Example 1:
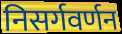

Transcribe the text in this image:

निसर्गवर्णन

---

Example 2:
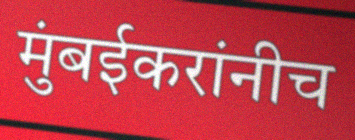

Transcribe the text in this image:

मुंबईकरांनीच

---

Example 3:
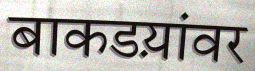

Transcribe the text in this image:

बाकडय़ांवर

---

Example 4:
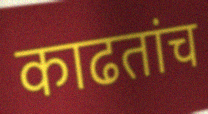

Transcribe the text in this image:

काढतांच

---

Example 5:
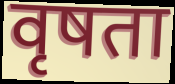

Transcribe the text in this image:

वृषता